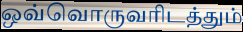
ஒவ்வொருவரிடத்தும்